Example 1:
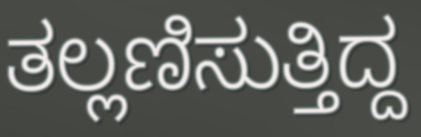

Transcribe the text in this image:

ತಲ್ಲಣಿಸುತ್ತಿದ್ದ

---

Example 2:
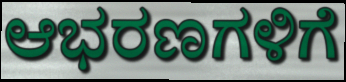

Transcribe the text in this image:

ಆಭರಣಗಳಿಗೆ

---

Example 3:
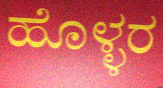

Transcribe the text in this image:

ಹೊಳ್ಳರ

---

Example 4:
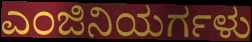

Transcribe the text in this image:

ಎಂಜಿನಿಯರ್ಗಳು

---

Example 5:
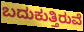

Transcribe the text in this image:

ಬದುಕುತ್ತಿರುವೆ